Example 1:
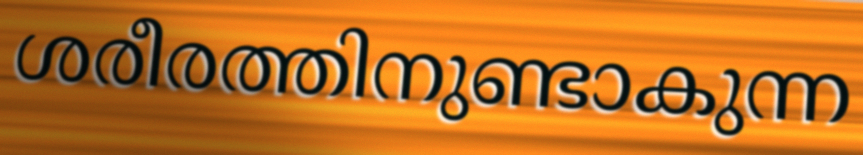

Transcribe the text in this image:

ശരീരത്തിനുണ്ടാകുന്ന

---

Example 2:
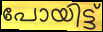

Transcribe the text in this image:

പോയിട്ട്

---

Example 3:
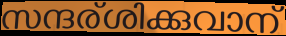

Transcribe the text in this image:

സന്ദര്ശിക്കുവാന്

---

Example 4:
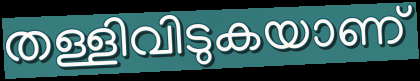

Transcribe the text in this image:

തള്ളിവിടുകയാണ്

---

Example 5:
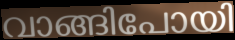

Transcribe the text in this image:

വാങ്ങിപോയി